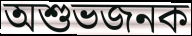
অশুভজনক